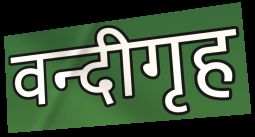
वन्दीगृह